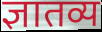
ज्ञातव्य